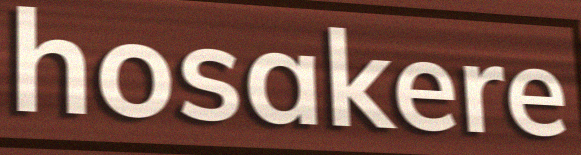
hosakere